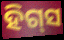
ହିଗ୍‌ସ